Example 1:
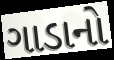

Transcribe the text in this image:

ગાડાનો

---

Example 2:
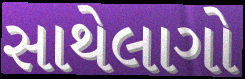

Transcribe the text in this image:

સાથેલાગો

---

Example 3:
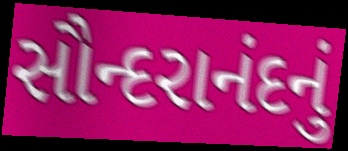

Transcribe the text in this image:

સૌન્દરાનંદનું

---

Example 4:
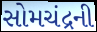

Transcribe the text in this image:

સોમચંદ્રની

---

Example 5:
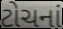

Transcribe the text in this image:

ટોચનાં